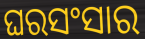
ଘରସଂସାର